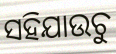
ସହିଯାଉଚୁ